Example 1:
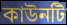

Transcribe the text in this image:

কাউনটি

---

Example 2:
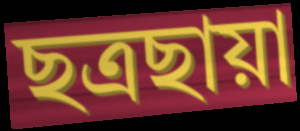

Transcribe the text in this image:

ছত্রছায়া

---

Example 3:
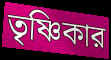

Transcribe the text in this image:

তৃষ্ণিকার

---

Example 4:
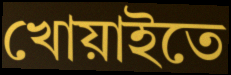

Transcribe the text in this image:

খোয়াইতে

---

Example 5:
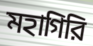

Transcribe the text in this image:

মহাগিরি